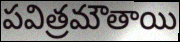
పవిత్రమౌతాయి